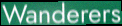
Wanderers